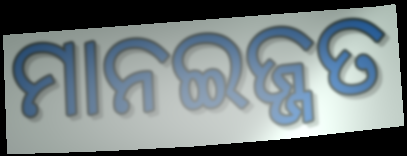
ମାନଇଜ୍ଜତ